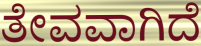
ತೇವವಾಗಿದೆ